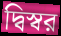
দ্বিস্বর